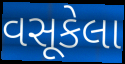
વસૂકેલા